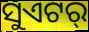
ସୁଏଟର୍